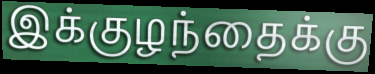
இக்குழந்தைக்கு